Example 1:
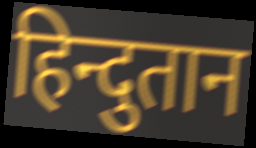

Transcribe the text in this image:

हिन्दुतान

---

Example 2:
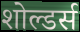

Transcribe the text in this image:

शोल्डर्स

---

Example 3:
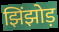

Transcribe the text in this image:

झिंझोड़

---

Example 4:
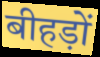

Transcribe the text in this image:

बीहड़ों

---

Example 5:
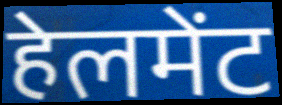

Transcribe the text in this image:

हेलमेंट